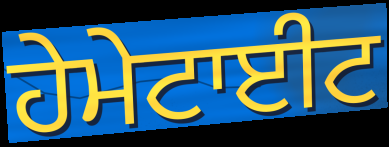
ਹੇਮੇਟਾਈਟ